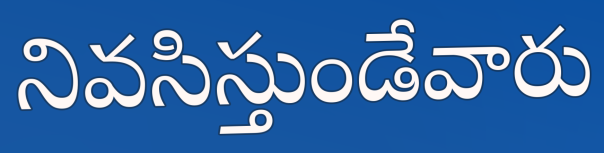
నివసిస్తుండేవారు